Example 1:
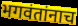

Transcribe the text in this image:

भगवंतांनाच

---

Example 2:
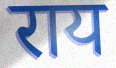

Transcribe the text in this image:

राय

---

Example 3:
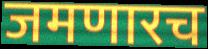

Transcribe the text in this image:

जमणारच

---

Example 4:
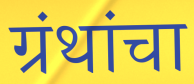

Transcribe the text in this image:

ग्रंथांचा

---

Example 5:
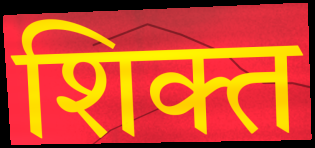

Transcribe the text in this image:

शिक्त